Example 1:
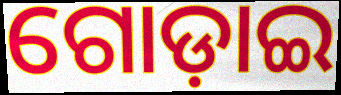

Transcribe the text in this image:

ଗୋଡ଼ାଇ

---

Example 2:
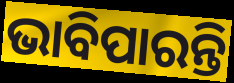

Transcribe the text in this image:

ଭାବିପାରନ୍ତି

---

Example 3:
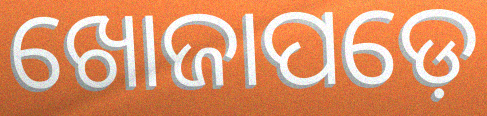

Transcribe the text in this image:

ଖୋଜାପଡ଼େ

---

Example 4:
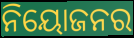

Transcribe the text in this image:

ନିୟୋଜନର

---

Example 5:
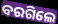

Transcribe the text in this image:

ବରଗିଲେ